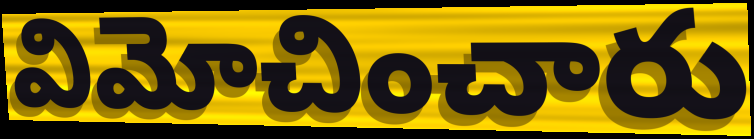
విమోచించారు